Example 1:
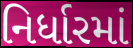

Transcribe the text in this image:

નિર્ધારમાં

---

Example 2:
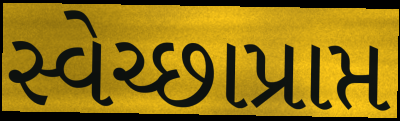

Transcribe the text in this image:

સ્વેચ્છાપ્રાપ્ત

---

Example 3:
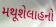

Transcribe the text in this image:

મથૂશેલાહનો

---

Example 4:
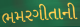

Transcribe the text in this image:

ભમરગીતાની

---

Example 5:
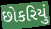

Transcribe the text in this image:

છોકરિયું